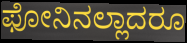
ಫೋನಿನಲ್ಲಾದರೂ